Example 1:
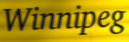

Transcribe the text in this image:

Winnipeg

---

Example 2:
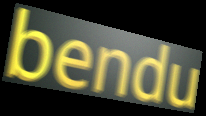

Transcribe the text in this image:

bendu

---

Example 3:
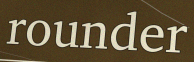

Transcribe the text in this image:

rounder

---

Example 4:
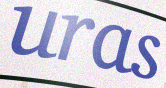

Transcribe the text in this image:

uras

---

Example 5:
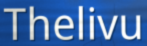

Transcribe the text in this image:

Thelivu